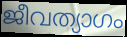
ജീവത്യാഗം